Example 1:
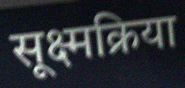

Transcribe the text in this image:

सूक्ष्मक्रिया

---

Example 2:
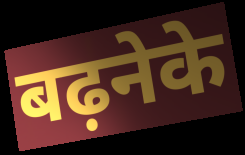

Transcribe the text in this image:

बढ़नेके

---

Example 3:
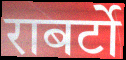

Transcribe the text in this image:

राबर्टो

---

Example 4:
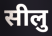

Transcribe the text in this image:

सीलु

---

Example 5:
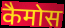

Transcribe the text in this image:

कैमोस